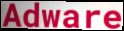
Adware